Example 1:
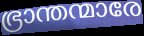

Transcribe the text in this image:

ഭ്രാന്തന്മാരേ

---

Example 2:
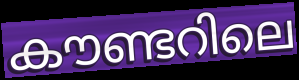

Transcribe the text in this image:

കൗണ്ടറിലെ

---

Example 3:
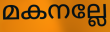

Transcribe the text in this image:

മകനല്ലേ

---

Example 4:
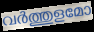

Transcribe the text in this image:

വർത്തുളമോ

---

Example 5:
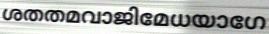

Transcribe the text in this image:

ശതതമവാജിമേധയാഗേ